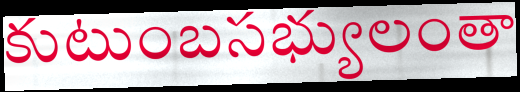
కుటుంబసభ్యులంతా